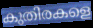
കുതിരകളെ